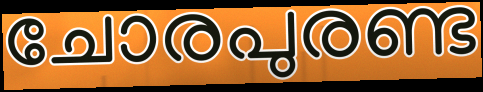
ചോരപുരണ്ട